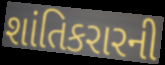
શાંતિકરારની